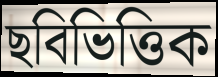
ছবিভিত্তিক